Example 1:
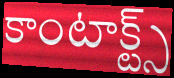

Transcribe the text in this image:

కాంటాక్ట్స్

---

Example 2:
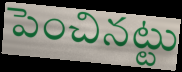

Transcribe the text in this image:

పెంచినట్టు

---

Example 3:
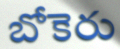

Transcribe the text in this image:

బోకెరు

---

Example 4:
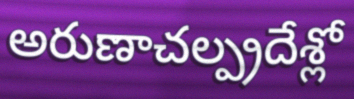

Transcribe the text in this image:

అరుణాచల్ప్రదేశ్లో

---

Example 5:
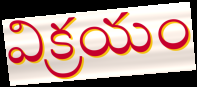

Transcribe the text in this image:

విక్రయం